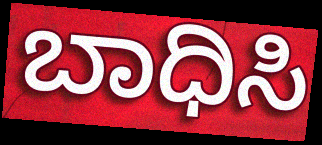
ಬಾಧಿಸಿ